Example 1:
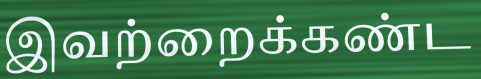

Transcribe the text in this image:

இவற்றைக்கண்ட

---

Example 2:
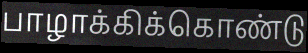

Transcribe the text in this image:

பாழாக்கிக்கொண்டு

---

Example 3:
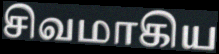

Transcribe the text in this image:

சிவமாகிய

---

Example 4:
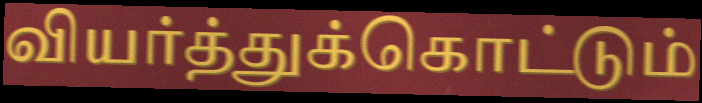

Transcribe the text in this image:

வியர்த்துக்கொட்டும்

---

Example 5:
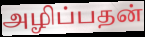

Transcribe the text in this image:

அழிப்பதன்